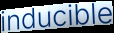
inducible